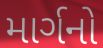
માર્ગનો